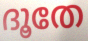
ദൂതേ